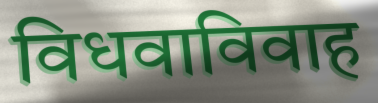
विधवाविवाह